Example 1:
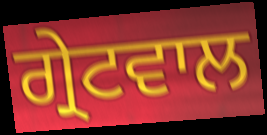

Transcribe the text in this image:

ਗ੍ਰੇਟਵਾਲ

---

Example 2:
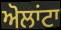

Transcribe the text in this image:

ਅੋਲਾਂਟਾ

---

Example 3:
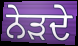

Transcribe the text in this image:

ਨੇੜਦੇ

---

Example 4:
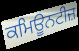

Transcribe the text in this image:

ਕਮਿਊਨਟੀਜ਼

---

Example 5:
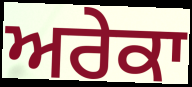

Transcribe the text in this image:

ਅਰੇਕਾ